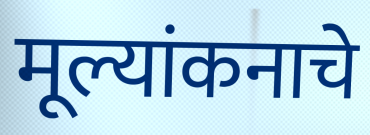
मूल्यांकनाचे